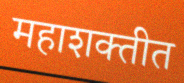
महाशक्तीत